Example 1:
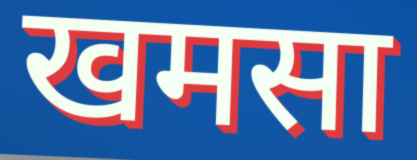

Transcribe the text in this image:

खमसा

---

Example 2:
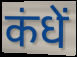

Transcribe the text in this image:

कंधें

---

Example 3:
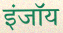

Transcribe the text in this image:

इंजॉय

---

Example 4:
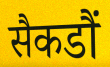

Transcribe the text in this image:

सैकडौं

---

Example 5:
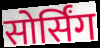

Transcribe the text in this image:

सोर्सिंग